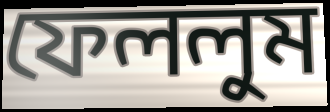
ফেললুম